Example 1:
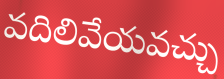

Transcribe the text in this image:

వదిలివేయవచ్చు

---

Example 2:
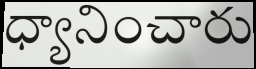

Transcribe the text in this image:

ధ్యానించారు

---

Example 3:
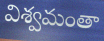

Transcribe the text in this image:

విశ్వమంతా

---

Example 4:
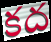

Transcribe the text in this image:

కద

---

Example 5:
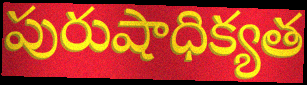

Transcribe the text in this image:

పురుషాధిక్యత